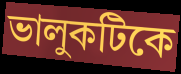
ভালুকটিকে